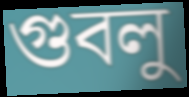
গুবলু